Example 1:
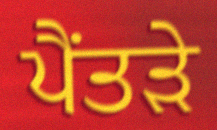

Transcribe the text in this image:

ਪੈਂਤੜੇ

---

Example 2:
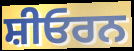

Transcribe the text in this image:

ਸ਼ੀਓਰਨ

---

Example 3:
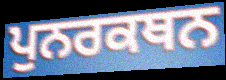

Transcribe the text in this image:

ਪੁਨਰਕਥਨ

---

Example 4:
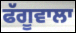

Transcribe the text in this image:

ਫੱਗੂਵਾਲਾ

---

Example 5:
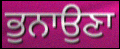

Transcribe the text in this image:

ਭੁਨਾਉਣਾ